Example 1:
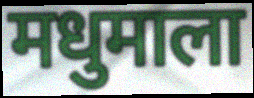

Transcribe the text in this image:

मधुमाला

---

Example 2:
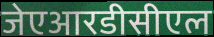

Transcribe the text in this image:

जेएआरडीसीएल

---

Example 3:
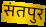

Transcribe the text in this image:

संतपुर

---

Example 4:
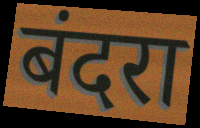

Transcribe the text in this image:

बंदरा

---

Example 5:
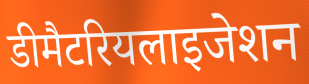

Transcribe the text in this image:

डीमैटरियलाइजेशन